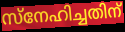
സ്നേഹിച്ചതിന്